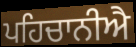
ਪਹਿਚਾਨੀਐ